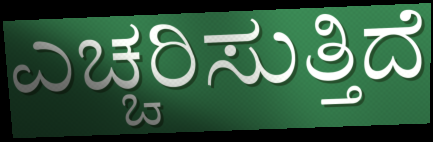
ಎಚ್ಚರಿಸುತ್ತಿದೆ